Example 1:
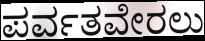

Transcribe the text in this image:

ಪರ್ವತವೇರಲು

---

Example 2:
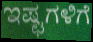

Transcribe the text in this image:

ಇಷ್ಟಗಳಿಗೆ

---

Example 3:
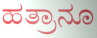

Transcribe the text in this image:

ಹತ್ರಾನೂ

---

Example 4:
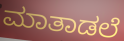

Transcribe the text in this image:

ಮಾತಾಡಲೆ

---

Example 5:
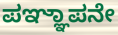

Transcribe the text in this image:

ಪಞ್ಞಾಪನೇ